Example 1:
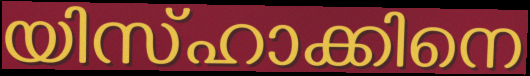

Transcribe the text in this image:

യിസ്ഹാക്കിനെ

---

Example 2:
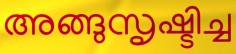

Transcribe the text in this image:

അങ്ങുസൃഷ്ടിച്ച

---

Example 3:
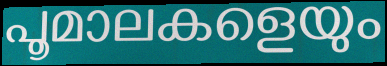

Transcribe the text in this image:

പൂമാലകളെയും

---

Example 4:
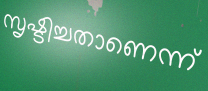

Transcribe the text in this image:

സൃഷ്ടിച്ചതാണെന്ന്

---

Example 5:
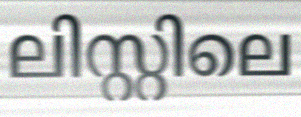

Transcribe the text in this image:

ലിസ്റ്റിലെ